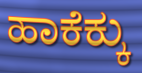
ಹಾಕೆಕ್ಕು